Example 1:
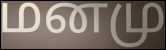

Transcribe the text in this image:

மனமு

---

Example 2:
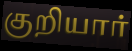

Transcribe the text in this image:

குறியார்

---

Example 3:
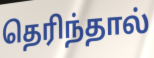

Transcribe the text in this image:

தெரிந்தால்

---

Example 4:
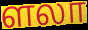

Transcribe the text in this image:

ளலா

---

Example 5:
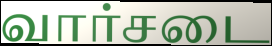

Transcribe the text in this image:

வார்சடை